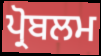
ਪ੍ਰੋਬਲਮ